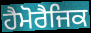
ਹੈਮੋਰੈਜਿਕ